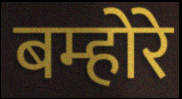
बम्होरे